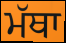
ਮੱਥਾ